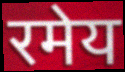
रमेय